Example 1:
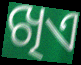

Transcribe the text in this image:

ଖିଏ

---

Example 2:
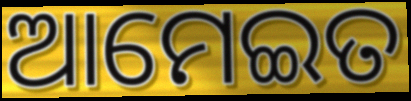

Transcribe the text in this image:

ଆମେଇତ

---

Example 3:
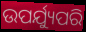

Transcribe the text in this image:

ଉପର୍ଯ୍ୟୁପରି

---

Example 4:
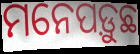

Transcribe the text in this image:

ମନେପଡ଼ୁଛ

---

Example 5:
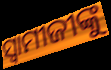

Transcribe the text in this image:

ସ୍ଵାମୀଜୀଙ୍କୁ